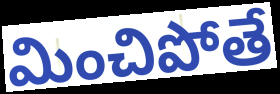
మించిపోతే